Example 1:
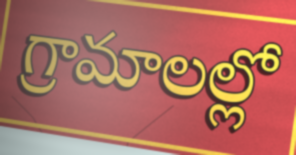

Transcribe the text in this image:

గ్రామాలల్లో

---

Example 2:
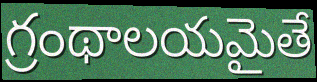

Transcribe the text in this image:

గ్రంథాలయమైతే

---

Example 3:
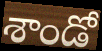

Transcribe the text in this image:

శాండో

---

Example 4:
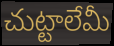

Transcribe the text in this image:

చుట్టాలేమీ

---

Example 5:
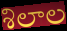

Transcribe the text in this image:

శిలాల